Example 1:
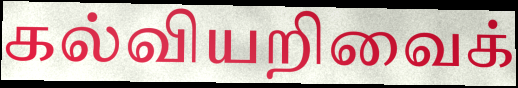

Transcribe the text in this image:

கல்வியறிவைக்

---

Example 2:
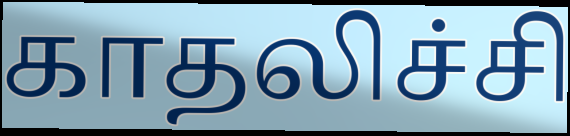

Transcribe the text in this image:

காதலிச்சி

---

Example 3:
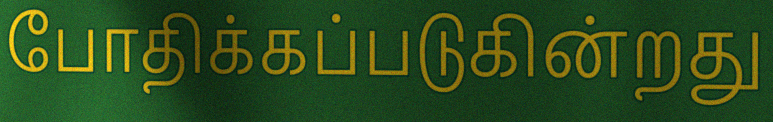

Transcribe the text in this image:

போதிக்கப்படுகின்றது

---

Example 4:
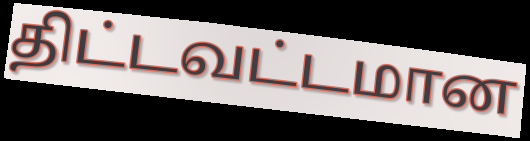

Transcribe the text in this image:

திட்டவட்டமான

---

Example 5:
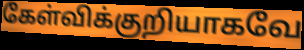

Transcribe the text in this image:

கேள்விக்குறியாகவே